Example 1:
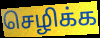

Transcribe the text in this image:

செழிக்க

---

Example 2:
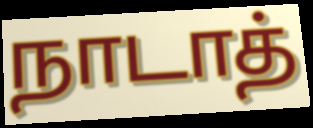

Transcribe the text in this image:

நாடாத்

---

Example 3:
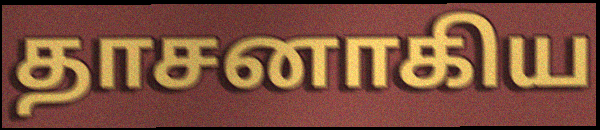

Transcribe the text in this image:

தாசனாகிய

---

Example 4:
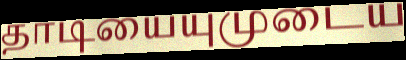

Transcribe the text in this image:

தாடியையுமுடைய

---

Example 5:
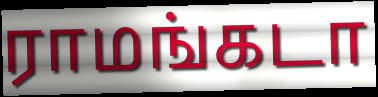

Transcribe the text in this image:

ராமங்கடா